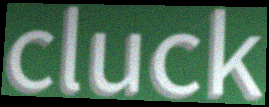
cluck